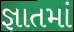
જ્ઞાતમાં